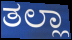
ತಲ್ಲಾ